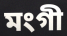
মংগী